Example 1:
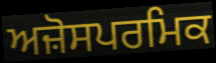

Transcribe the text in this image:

ਅਜ਼ੋਸਪਰਮਿਕ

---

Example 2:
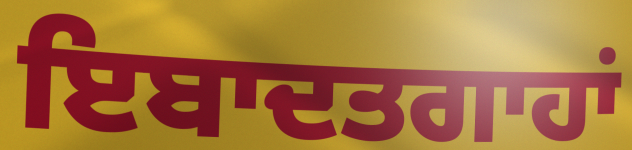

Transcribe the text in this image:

ਇਬਾਦਤਗਾਹਾਂ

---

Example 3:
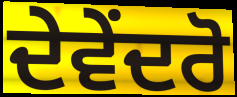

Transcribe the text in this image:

ਦੇਵੇਂਦਰੋ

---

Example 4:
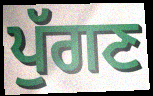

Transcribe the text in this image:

ਪੁੱਗਣ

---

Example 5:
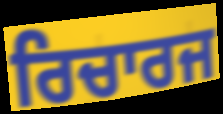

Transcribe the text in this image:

ਰਿਚਾਰਜ